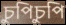
চুপিচুপি